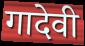
गादेवी